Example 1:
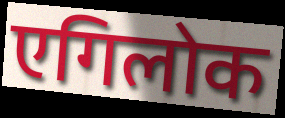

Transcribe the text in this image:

एगिलोक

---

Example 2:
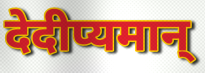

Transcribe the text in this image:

देदीप्यमान्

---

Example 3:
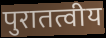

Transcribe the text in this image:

पुरातत्वीय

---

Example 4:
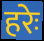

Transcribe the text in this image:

हरेः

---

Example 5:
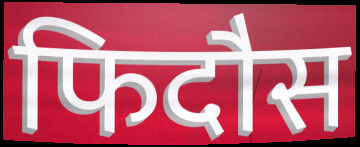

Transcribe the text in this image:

फिदौस